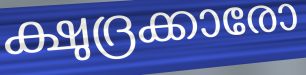
ക്ഷുദ്രക്കാരോ